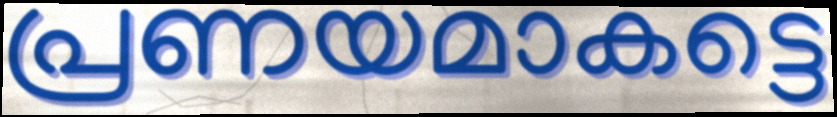
പ്രണയമാകട്ടെ